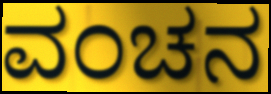
ವಂಚನ